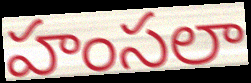
హంసలా